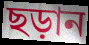
ছড়ান